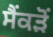
ਸੈਂਕੜੋਂ